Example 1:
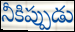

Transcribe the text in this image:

నీకిప్పుడు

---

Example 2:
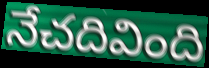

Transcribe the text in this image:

నేచదివింది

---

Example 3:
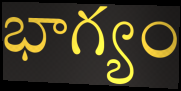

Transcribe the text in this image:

భాగ్యం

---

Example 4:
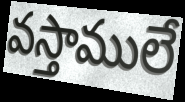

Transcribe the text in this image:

వస్తాములే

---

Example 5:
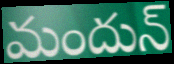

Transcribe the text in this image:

మందున్